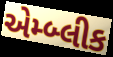
એમ્બ્લીક